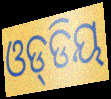
ଓଡ୍‌ଡିୟ